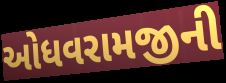
ઓધવરામજીની